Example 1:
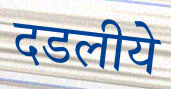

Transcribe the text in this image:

दडलीये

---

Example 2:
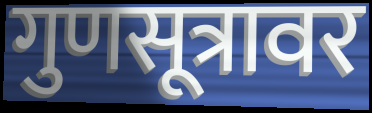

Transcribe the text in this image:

गुणसूत्रावर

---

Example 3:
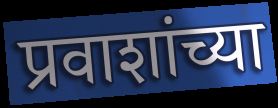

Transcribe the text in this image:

प्रवाशांच्या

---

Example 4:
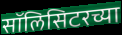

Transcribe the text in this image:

सॉलिसिटरच्या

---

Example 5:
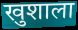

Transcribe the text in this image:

खुशाला